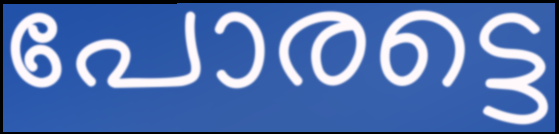
പോരട്ടെ